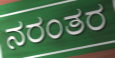
ನರಂತರ